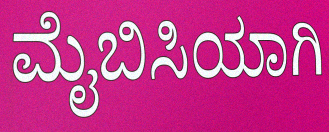
ಮೈಬಿಸಿಯಾಗಿ